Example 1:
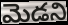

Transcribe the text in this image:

మెడని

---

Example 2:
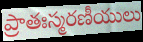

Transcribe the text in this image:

ప్రాతఃస్మరణీయులు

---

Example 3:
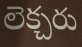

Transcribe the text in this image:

లెక్చరు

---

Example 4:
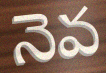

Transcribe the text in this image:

నెవ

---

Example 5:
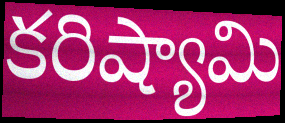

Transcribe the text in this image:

కరిష్యామి